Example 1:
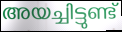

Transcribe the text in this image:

അയച്ചിട്ടുണ്ട്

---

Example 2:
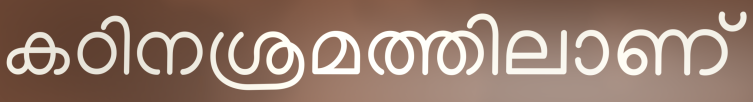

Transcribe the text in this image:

കഠിനശ്രമത്തിലാണ്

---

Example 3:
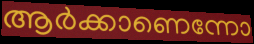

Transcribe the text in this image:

ആർക്കാണെന്നോ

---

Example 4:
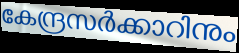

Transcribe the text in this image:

കേന്ദ്രസർക്കാറിനും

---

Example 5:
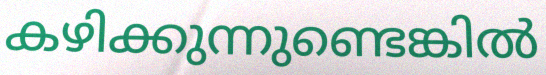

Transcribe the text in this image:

കഴിക്കുന്നുണ്ടെങ്കിൽ